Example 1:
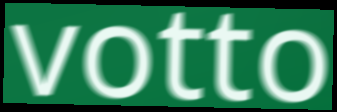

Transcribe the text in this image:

votto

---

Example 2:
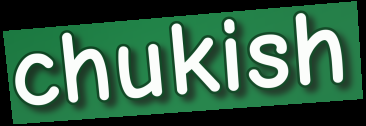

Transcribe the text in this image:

chukish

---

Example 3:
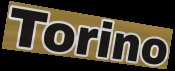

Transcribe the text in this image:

Torino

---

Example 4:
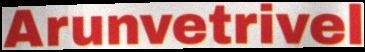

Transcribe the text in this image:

Arunvetrivel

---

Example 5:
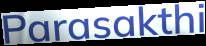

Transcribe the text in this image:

Parasakthi